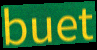
buet